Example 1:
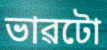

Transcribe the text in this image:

ভাৱটো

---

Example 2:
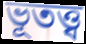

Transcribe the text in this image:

ভূতত্ত্ব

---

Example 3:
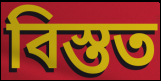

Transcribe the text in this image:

বিস্তত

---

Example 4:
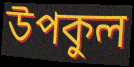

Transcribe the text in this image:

উপকুল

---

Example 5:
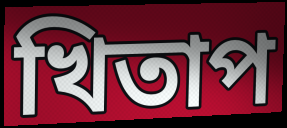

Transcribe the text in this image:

খিতাপ